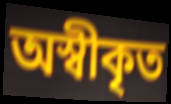
অস্বীকৃত